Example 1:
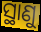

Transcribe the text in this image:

ସ୍ଥାଣୁ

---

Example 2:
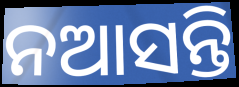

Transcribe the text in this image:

ନଆସନ୍ତି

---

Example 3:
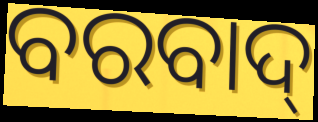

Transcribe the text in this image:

ବରବାଦ୍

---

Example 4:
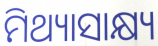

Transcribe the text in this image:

ମିଥ୍ୟାସାକ୍ଷ୍ୟ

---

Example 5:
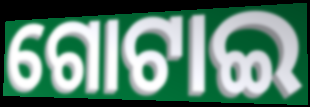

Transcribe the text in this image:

ଗୋଟାଇ